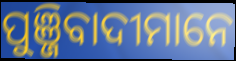
ପୁଞ୍ଜିବାଦୀମାନେ